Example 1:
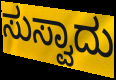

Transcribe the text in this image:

ಸುಸ್ವಾದು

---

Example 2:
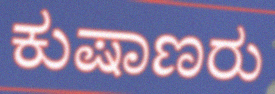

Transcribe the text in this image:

ಕುಷಾಣರು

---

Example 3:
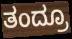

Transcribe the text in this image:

ತಂದ್ರೂ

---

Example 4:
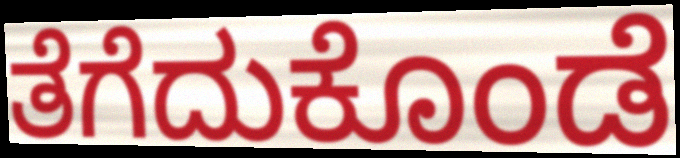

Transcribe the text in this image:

ತೆಗೆದುಕೊಂಡೆ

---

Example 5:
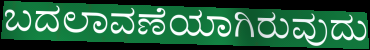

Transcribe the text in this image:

ಬದಲಾವಣೆಯಾಗಿರುವುದು